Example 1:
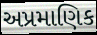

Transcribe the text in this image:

અપ્રમાણિક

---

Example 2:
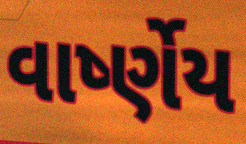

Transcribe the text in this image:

વાર્ષ્ણેય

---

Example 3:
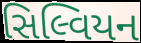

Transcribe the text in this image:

સિલ્વિયન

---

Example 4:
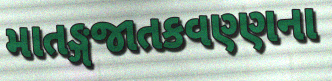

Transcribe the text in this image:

માતઙ્ગજાતકવણ્ણના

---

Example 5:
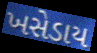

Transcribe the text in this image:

ખસેડાય